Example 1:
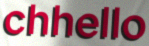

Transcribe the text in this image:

chhello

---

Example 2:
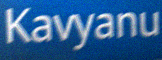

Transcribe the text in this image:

Kavyanu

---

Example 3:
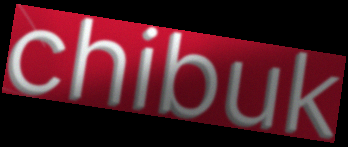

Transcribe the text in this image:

chibuk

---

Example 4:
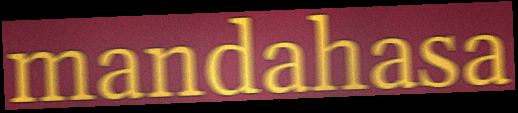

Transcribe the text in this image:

mandahasa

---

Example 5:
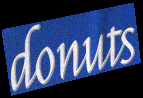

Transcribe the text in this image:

donuts